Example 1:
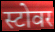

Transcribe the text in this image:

स्टोवर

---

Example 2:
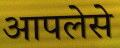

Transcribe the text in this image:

आपलेसे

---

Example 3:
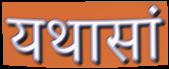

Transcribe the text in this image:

यथासां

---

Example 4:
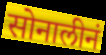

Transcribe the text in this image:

सोनालीनं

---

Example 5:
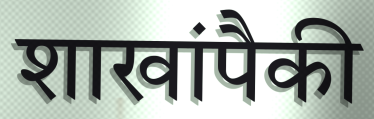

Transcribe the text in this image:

शाखांपैकी